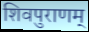
शिवपुराणम्